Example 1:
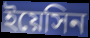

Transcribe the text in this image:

ইয়েসিন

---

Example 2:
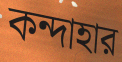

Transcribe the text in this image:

কন্দাহার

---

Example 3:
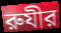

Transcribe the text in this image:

রুযীর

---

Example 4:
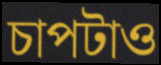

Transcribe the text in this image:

চাপটাও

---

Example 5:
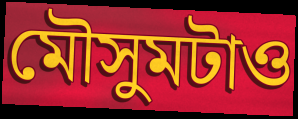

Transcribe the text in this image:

মৌসুমটাও